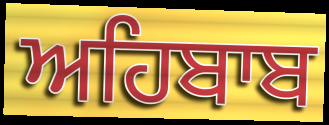
ਅਹਿਬਾਬ